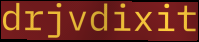
drjvdixit